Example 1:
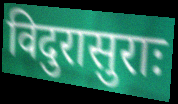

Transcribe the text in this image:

विदुरासुराः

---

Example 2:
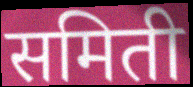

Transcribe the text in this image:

समिती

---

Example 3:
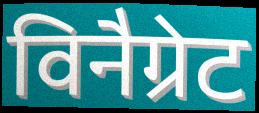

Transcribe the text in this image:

विनैग्रेट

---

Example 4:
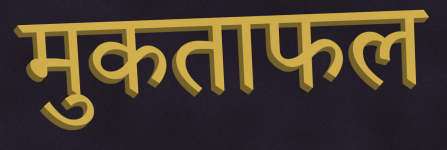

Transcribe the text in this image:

मुकताफल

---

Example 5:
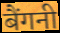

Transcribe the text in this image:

बैंगनी